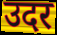
उदर